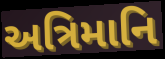
અત્રિમાનિ